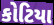
કોટિયા